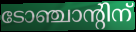
ടോഞ്ചാന്റിന്